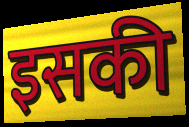
इसकी